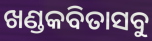
ଖଣ୍ଡକବିତାସବୁ